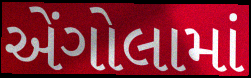
એંગોલામાં